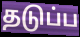
தடுப்ப